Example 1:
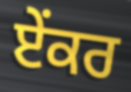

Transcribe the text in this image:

ਏੰਕਰ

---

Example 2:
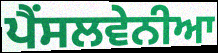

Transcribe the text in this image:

ਪੈਂਸਲਵੇਨੀਆ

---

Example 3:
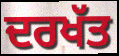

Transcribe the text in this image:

ਦਰਖੱਤ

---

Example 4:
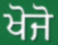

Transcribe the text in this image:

ਖੋਜੋ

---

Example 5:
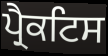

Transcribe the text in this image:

ਪ੍ਰੈਕਟਿਸ